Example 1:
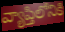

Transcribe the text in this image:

వ్యాప్తిలోనికి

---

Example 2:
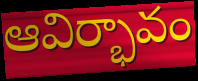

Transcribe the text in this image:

ఆవిర్భావం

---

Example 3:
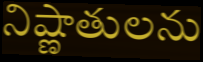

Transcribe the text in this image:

నిష్ణాతులను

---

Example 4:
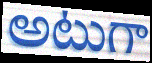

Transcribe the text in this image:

అటుగా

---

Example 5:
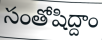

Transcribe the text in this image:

సంతోషిద్దాం